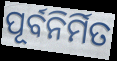
ପୂର୍ବନିର୍ମିତ